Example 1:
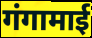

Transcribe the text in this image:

गंगामाई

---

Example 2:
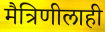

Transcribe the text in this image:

मैत्रिणीलाही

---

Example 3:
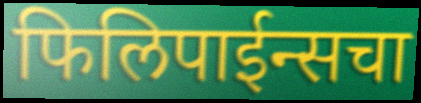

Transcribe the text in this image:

फिलिपाईन्सचा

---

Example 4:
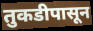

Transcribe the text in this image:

तुकडीपासून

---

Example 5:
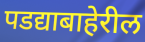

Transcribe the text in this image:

पडद्याबाहेरील